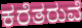
ಕರೆತರುವೆ